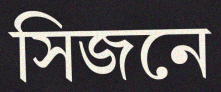
সিজনে